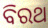
ବିରଥ